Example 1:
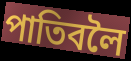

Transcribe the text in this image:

পাতিবলৈ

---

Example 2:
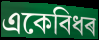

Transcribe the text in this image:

একেবিধৰ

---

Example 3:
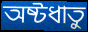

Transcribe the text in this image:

অষ্টধাতু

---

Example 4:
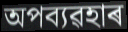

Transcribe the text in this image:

অপব্যৱহাৰ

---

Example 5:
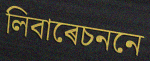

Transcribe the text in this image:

লিবাৰেচননে